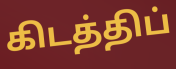
கிடத்திப்